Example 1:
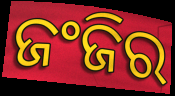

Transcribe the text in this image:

ଜଂଜିର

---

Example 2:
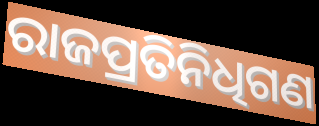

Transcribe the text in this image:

ରାଜପ୍ରତିନିଧିଗଣ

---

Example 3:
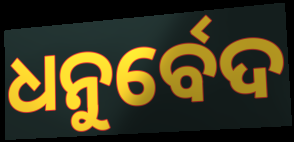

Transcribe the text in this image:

ଧନୁର୍ବେଦ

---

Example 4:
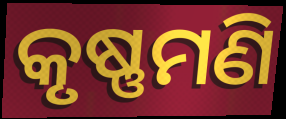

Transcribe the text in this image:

କୃଷ୍ଣମଣି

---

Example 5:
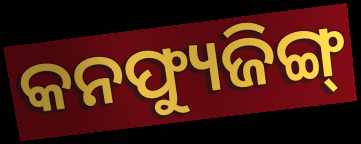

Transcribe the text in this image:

କନଫ୍ୟୁଜିଙ୍ଗ୍